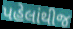
પહેલાંથીજ